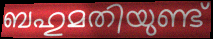
ബഹുമതിയുണ്ട്